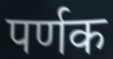
पर्णक